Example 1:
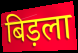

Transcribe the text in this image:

बिड़ला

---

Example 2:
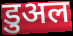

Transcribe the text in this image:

डुअल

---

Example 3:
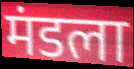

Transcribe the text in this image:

मंडला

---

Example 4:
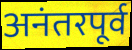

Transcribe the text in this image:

अनंतरपूर्व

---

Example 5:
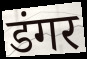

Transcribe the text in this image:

डंगर